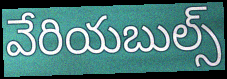
వేరియబుల్స్